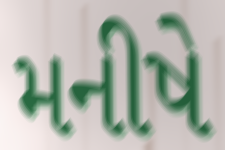
મનીષે